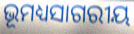
ଭୂମଧ୍ୟସାଗରୀୟ